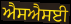
ਐਸਐਸਈ